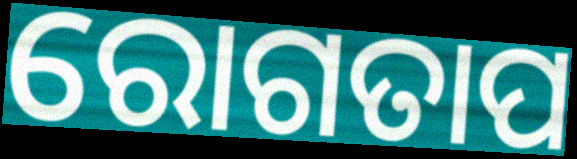
ରୋଗତାପ